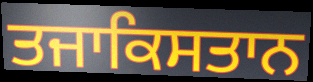
ਤਜਾਕਿਸਤਾਨ